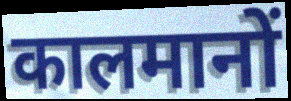
कालमानों